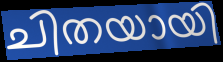
ചിതയായി